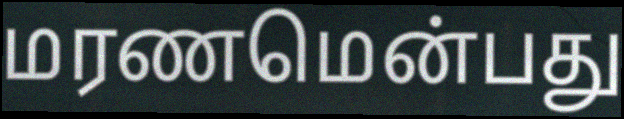
மரணமென்பது